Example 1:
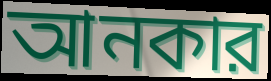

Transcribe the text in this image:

আনকার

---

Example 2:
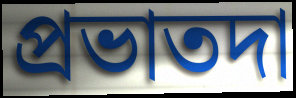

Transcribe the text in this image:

প্রভাতদা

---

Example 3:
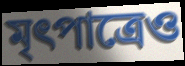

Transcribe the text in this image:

মৃৎপাত্রেও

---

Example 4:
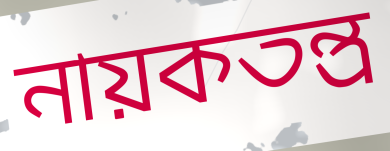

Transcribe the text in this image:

নায়কতন্ত্র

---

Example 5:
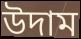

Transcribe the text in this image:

উদাম